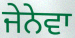
ਜੇਨੇਵਾ